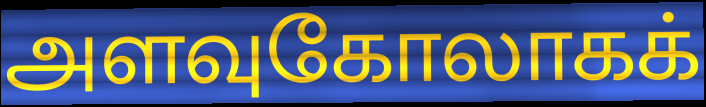
அளவுகோலாகக்